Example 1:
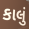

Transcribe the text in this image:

કાલું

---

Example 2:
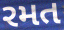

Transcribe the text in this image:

રમત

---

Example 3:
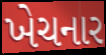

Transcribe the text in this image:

ખેચનાર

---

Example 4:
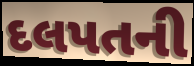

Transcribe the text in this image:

દલપતની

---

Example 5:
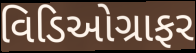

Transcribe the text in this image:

વિડિઓગ્રાફર